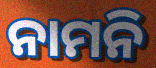
ନାମନି